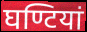
घण्टियां